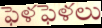
ఫెళఫెళలు